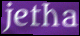
jetha